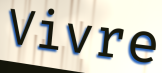
Vivre